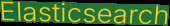
Elasticsearch